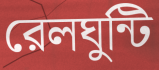
রেলঘুন্টি